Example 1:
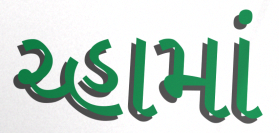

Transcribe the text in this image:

ચ્હામાં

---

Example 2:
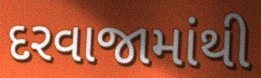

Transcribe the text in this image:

દરવાજામાંથી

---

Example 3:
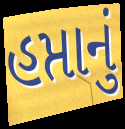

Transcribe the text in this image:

હપ્તાનું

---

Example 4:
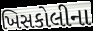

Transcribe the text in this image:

ખિસકોલીના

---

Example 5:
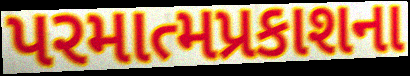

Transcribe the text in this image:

પરમાત્મપ્રકાશના